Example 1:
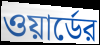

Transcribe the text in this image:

ওয়ার্ডের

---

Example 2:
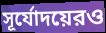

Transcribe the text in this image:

সূর্যোদয়েরও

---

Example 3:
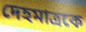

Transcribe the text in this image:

দেহমাত্রকে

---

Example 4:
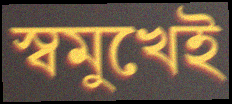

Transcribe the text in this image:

স্বমুখেই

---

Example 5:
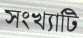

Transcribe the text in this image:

সংখ্যাটি